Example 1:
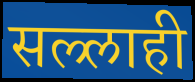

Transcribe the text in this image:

सल्लाही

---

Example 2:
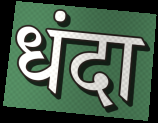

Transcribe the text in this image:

धंदा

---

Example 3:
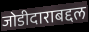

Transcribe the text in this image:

जोडीदाराबद्दल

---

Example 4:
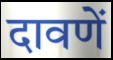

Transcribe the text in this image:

दावणें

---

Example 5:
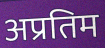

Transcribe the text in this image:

अप्रतिम